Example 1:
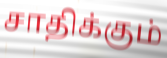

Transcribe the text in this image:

சாதிக்கும்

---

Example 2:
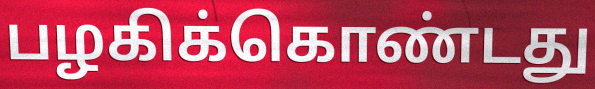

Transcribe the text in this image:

பழகிக்கொண்டது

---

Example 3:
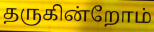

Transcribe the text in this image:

தருகின்றோம்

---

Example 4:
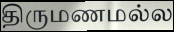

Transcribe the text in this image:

திருமணமல்ல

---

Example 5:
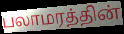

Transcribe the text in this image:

பலாமரத்தின்